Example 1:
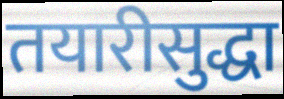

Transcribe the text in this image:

तयारीसुद्धा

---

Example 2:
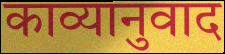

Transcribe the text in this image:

काव्यानुवाद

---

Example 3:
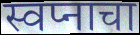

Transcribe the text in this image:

स्वप्नाचा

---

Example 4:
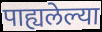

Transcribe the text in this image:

पाह्यलेल्या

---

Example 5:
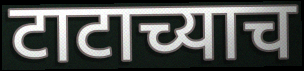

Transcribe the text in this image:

टाटाच्याच